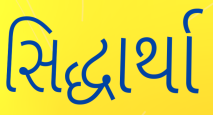
સિદ્ધાર્થા